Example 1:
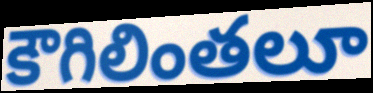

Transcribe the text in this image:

కౌగిలింతలూ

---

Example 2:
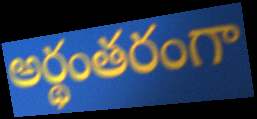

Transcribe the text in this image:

అర్థంతరంగా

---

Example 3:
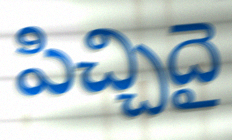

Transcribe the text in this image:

పిచ్చిదై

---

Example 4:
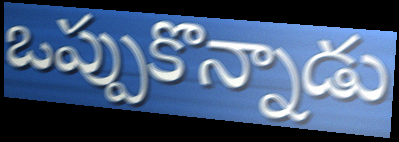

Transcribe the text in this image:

ఒప్పుకొన్నాడు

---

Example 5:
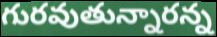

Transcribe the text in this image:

గురవుతున్నారన్న